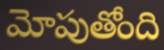
మోపుతోంది